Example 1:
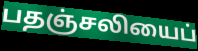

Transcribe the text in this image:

பதஞ்சலியைப்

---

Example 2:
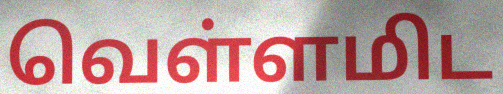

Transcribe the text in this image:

வெள்ளமிட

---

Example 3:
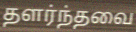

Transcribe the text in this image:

தளர்ந்தவை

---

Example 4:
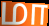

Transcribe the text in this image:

மா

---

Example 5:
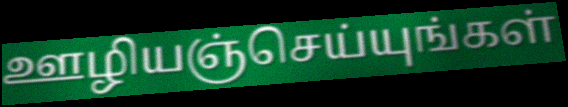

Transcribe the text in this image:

ஊழியஞ்செய்யுங்கள்